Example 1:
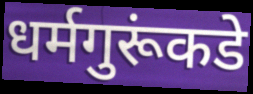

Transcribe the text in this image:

धर्मगुरूंकडे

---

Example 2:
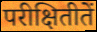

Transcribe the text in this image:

परीक्षितीतें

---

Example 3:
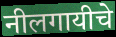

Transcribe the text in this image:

नीलगायीचे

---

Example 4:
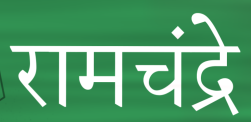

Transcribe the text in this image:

रामचंद्रे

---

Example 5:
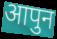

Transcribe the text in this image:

आपुन